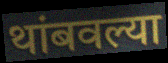
थांबवल्या